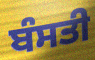
ਬੰਸਤੀ